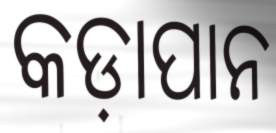
କଡ଼ାପାନ